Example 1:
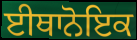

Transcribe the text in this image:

ਈਥਾਨੋਇਕ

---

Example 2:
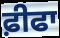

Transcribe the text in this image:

ਫ਼ੀਫਾ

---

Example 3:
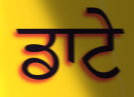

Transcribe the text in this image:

ਡਾਟੇ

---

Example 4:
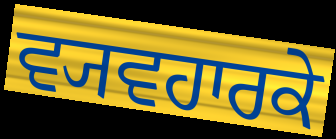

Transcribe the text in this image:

ਵ੍ਯਵਹਾਰਕੇ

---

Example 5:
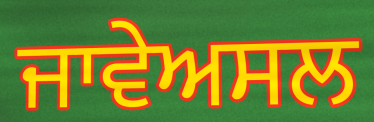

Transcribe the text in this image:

ਜਾਵੇਅਸਲ